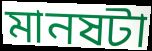
মানষটা